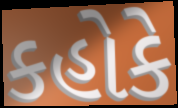
કહોકે